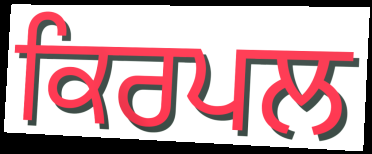
ਕਿਰਪਲ